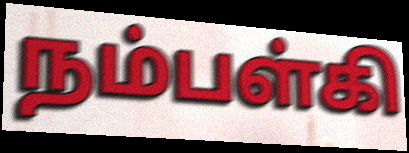
நம்பள்கி